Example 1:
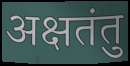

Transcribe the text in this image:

अक्षतंतु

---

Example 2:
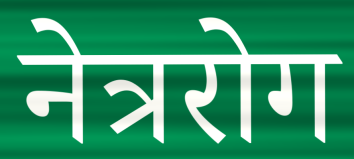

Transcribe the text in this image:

नेत्ररोग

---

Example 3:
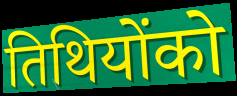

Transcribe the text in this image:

तिथियोंको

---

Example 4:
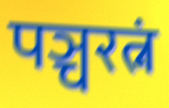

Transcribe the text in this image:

पञ्चरत्नं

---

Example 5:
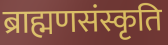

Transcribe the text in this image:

ब्राह्मणसंस्कृति